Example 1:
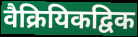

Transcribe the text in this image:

वैक्रियिकद्विक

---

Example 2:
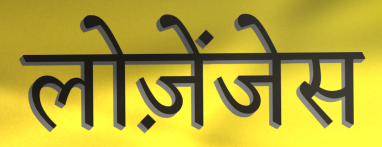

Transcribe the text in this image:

लोज़ेंजेस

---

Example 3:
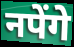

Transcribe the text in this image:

नपेंगे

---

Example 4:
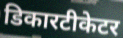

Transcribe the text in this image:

डिकारटीकेटर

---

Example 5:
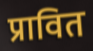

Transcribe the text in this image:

प्रावित